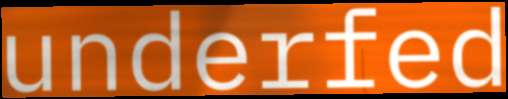
underfed